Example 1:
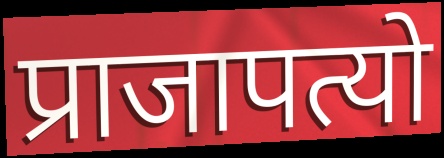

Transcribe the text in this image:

प्राजापत्यो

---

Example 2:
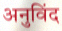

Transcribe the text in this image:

अनुविंद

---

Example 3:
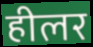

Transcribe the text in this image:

हीलर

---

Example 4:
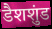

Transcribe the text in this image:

डैशशुंड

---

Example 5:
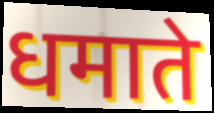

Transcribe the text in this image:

धमाते